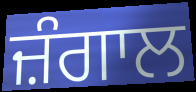
ਜ਼ੰਗਾਲ